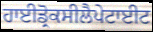
ਹਾਈਡ੍ਰੋਕਸੀਲੈਪੇਟਾਈਟ